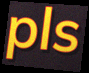
pls